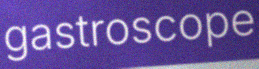
gastroscope